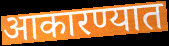
आकारण्यात